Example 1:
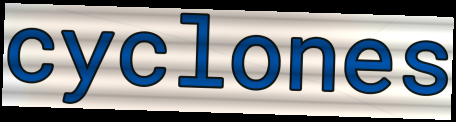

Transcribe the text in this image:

cyclones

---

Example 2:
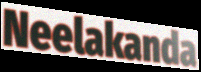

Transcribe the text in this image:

Neelakanda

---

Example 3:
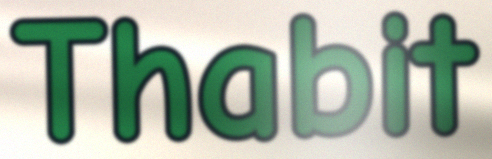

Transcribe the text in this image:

Thabit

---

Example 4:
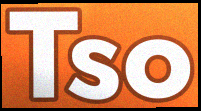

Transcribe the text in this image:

Tso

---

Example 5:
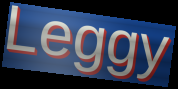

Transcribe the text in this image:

Leggy